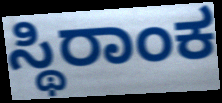
ಸ್ಥಿರಾಂಕ